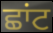
ਛਾਂਟ